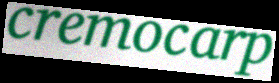
cremocarp